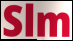
Slm